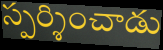
స్పర్శించాడు